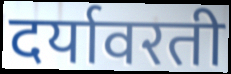
दर्यावरती